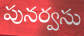
పునర్వసు